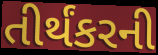
તીર્થંકરની